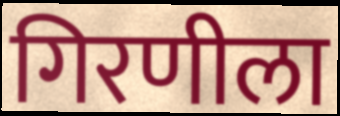
गिरणीला